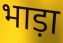
भाड़ा